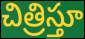
చిత్రిస్తూ